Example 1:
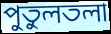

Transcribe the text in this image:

পুতুলতলা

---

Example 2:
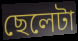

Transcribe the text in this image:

ছেলেটা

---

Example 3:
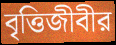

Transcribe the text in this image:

বৃত্তিজীবীর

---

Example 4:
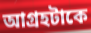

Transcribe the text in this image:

আগ্রহটাকে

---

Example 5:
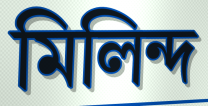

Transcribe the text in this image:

মিলিন্দ